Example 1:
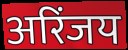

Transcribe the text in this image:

अरिंजय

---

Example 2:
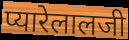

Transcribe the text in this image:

प्यारेलालजी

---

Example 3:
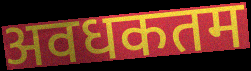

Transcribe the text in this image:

अवधकतम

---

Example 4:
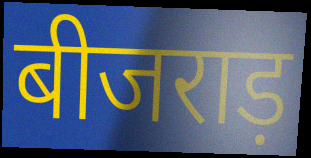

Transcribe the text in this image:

बीजराड़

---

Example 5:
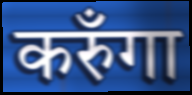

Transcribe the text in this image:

करुँगा